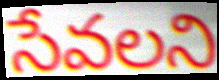
సేవలని